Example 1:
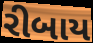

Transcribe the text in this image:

રીબાય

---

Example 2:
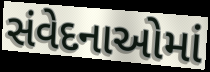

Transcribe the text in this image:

સંવેદનાઓમાં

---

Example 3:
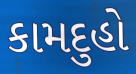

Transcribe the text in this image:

કામદુહો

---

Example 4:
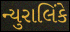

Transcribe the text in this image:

ન્યુરાલિંકે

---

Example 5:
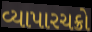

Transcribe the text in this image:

વ્યાપારચક્રો